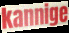
kannige